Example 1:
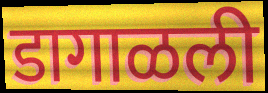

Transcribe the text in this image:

डागाळली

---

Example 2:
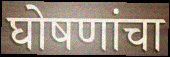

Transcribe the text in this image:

घोषणांचा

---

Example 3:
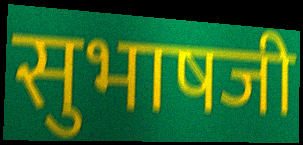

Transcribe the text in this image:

सुभाषजी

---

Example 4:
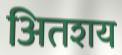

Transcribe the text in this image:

अितशय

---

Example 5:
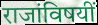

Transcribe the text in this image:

राजांविषयीं